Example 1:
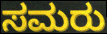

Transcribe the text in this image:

ಸಮರು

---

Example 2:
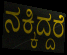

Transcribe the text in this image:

ನಕ್ಕಿದ್ದರೆ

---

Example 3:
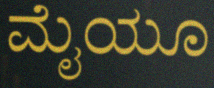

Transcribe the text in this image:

ಮೈಯೂ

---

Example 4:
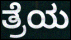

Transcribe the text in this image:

ತ್ರೆಯ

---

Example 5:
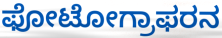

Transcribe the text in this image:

ಫೋಟೋಗ್ರಾಫರನ